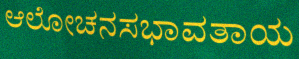
ಆಲೋಚನಸಭಾವತಾಯ